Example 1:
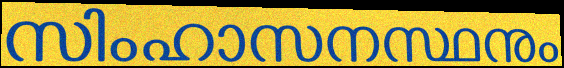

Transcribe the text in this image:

സിംഹാസനസ്ഥനും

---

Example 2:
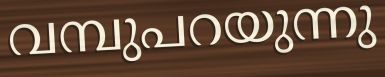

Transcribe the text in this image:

വമ്പുപറയുന്നു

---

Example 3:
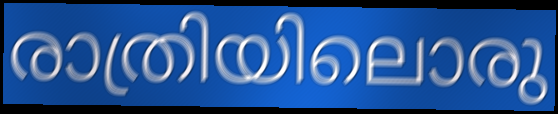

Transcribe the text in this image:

രാത്രിയിലൊരു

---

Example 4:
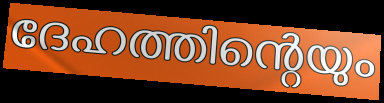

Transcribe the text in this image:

ദേഹത്തിന്റെയും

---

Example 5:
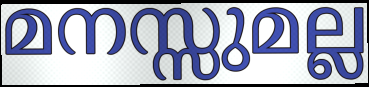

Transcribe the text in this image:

മനസ്സുമല്ല